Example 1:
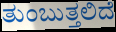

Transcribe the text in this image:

ತುಂಬುತ್ತಲಿದೆ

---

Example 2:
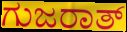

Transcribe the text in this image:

ಗುಜರಾತ್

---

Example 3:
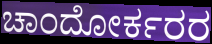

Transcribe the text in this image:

ಚಾಂದೋರ್ಕರರ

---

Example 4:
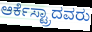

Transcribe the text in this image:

ಆರ್ಕೆಸ್ಟ್ರಾದವರು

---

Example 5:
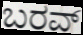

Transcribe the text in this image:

ಬರವ್